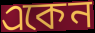
একেন